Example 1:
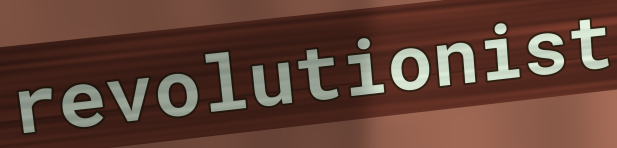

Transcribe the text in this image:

revolutionist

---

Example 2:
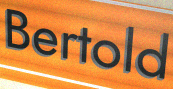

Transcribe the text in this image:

Bertold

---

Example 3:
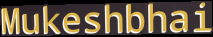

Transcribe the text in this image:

Mukeshbhai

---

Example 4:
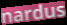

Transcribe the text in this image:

nardus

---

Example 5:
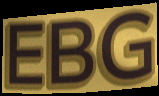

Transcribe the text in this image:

EBG